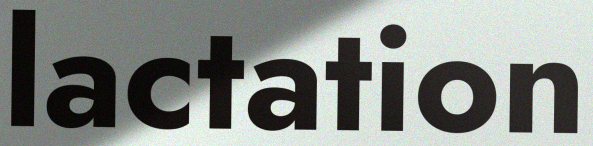
lactation